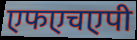
एफएचएपी